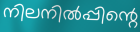
നിലനിൽപ്പിന്റെ